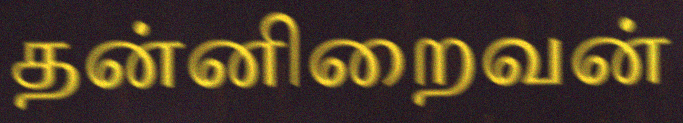
தன்னிறைவன்